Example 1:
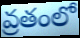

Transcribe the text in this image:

వ్రతంలో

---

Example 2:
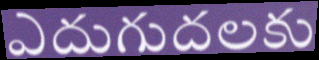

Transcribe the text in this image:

ఎదుగుదలకు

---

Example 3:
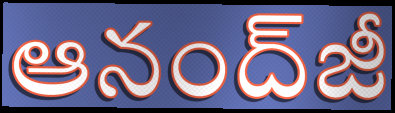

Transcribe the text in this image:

ఆనంద్‌జీ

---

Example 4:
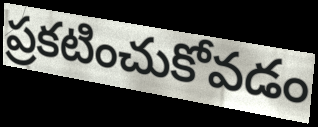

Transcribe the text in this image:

ప్రకటించుకోవడం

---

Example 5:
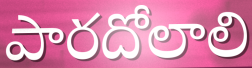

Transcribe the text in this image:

పారదోలాలి